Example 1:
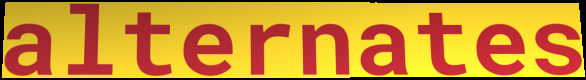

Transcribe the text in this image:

alternates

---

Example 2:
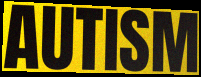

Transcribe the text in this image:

AUTISM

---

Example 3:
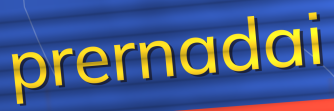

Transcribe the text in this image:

prernadai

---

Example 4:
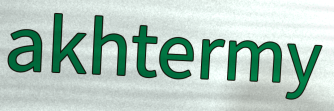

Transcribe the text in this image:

akhtermy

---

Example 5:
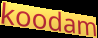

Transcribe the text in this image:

koodam